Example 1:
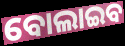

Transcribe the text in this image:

ବୋଲାଇବ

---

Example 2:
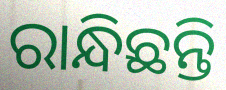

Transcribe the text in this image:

ରାନ୍ଧିଛନ୍ତି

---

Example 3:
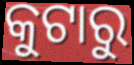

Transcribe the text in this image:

କୁଟାରୁ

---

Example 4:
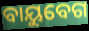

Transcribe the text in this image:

ବାୟୁବେଗ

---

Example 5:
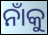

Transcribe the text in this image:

ନାଁକୁ